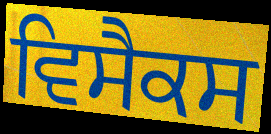
ਵਿਸੈਕਸ